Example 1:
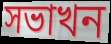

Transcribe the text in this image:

সভাখন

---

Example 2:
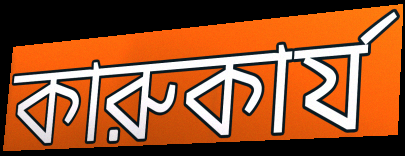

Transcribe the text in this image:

কাৰুকাৰ্য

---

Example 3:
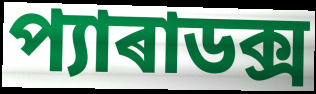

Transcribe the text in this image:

প্যাৰাডক্স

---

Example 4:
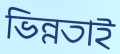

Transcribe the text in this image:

ভিন্নতাই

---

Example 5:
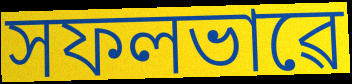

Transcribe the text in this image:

সফলভাৱে